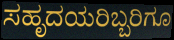
ಸಹೃದಯರಿಬ್ಬರಿಗೂ